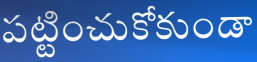
పట్టించుకోకుండా